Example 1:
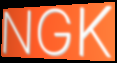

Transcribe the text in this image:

NGK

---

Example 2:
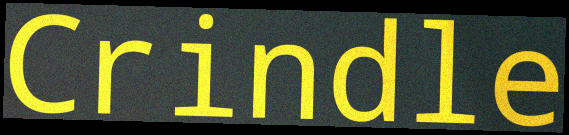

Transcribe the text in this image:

Crindle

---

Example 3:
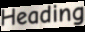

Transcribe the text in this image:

Heading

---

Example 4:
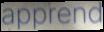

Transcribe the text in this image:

apprend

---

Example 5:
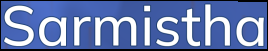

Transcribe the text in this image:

Sarmistha